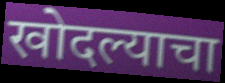
खोदल्याचा